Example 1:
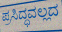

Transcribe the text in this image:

ಪ್ರಸಿದ್ಧವಲ್ಲದ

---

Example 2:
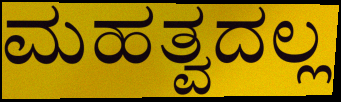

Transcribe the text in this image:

ಮಹತ್ವದಲ್ಲ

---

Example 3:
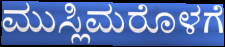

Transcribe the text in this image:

ಮುಸ್ಲಿಮರೊಳಗೆ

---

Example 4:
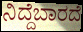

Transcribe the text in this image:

ನಿದ್ದೆಬಾರದೆ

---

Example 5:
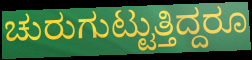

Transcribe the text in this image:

ಚುರುಗುಟ್ಟುತ್ತಿದ್ದರೂ